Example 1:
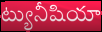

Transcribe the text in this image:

ట్యునీషియా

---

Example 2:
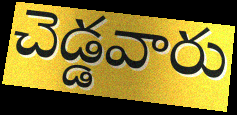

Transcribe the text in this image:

చెడ్డవారు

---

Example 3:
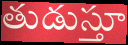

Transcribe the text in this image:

తుడుస్తూ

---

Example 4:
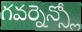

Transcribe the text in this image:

గవర్నెన్స్లో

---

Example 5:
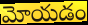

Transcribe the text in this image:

మోయడం